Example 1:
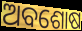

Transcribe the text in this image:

ଅବଶୋଷ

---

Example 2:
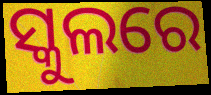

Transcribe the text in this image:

ସ୍କୁଲରେ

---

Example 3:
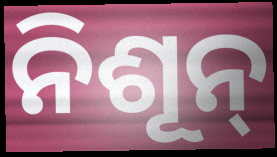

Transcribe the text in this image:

ନିଶୂନ୍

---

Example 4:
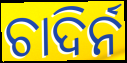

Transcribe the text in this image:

ଚାଦିର୍ନ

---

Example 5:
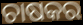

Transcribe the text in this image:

ଚାଷକର